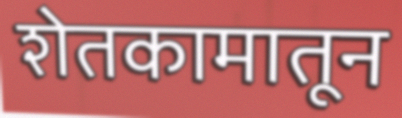
शेतकामातून